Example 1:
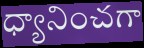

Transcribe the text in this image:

ధ్యానించగా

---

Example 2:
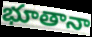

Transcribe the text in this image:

భూతానా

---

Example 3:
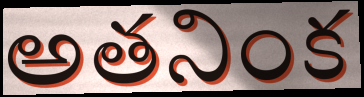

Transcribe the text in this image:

అతనింక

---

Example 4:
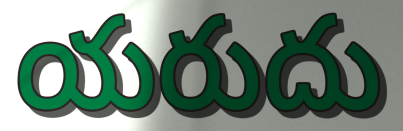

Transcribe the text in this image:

యరుదు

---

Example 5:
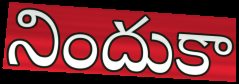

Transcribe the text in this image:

నిందుకా